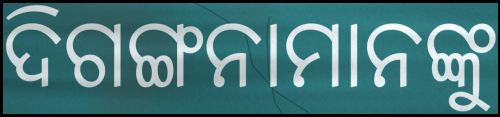
ଦିଗଙ୍ଗନାମାନଙ୍କୁ